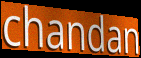
chandan